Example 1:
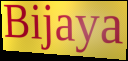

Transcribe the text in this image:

Bijaya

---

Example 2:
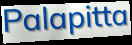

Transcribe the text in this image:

Palapitta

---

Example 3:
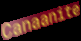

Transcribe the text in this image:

Canaanite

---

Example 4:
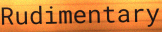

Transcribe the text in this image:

Rudimentary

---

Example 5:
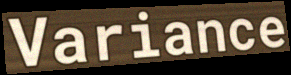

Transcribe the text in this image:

Variance